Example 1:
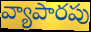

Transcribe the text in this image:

వ్యాపారపు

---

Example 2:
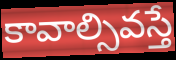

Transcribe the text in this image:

కావాల్సివస్తే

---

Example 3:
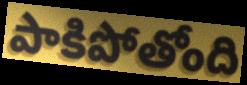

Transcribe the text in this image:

పాకిపోతోంది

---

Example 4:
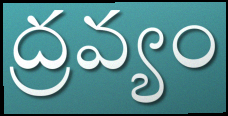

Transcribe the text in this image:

ద్రవ్యం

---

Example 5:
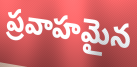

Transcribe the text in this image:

ప్రవాహమైన